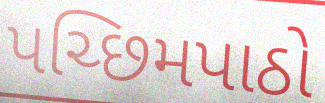
પચ્છિમપાઠો